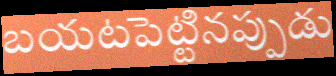
బయటపెట్టినప్పుడు